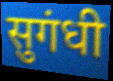
सुगंधी